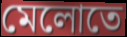
মেলোতে